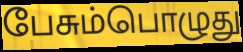
பேசும்பொழுது